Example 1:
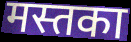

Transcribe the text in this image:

मस्तका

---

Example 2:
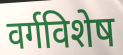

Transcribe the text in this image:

वर्गविशेष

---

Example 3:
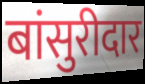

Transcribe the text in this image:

बांसुरीदार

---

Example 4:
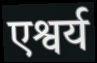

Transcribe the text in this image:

एश्वर्य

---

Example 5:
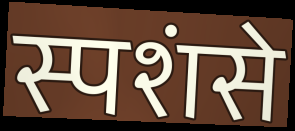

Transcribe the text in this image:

स्पशंसे